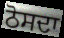
ਠੋਸਦਾ